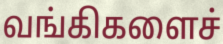
வங்கிகளைச்